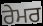
ਰੇਮਰ